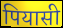
पियासी